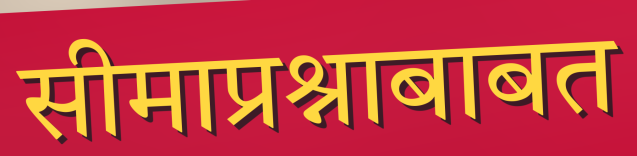
सीमाप्रश्नाबाबत